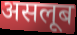
असलूब